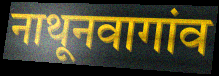
नाथूनवागांव